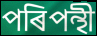
পৰিপন্থী